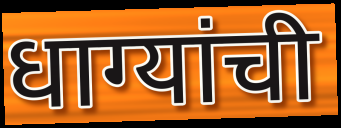
धाग्यांची